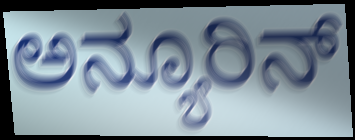
ಅನ್ಯೂರಿನ್